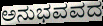
ಅನುಭವವದ